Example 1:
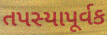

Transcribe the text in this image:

તપસ્યાપૂર્વક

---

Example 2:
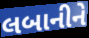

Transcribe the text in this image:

લબાનીને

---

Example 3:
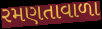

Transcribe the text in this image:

રમણતાવાળા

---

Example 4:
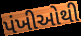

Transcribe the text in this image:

પંખીઓથી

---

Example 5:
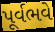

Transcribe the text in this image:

પૂર્વભવે